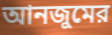
আনজুমের